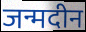
जन्मदीन